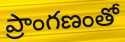
ప్రాంగణంతో